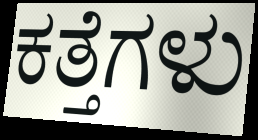
ಕತ್ತೆಗಳು